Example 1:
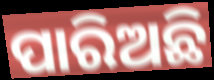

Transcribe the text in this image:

ପାରିଅଛି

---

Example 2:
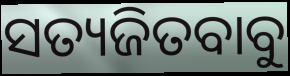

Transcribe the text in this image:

ସତ୍ୟଜିତବାବୁ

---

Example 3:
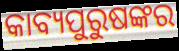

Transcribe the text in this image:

କାବ୍ୟପୁରୁଷଙ୍କର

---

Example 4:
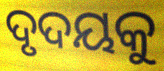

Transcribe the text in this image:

ଦୃଦୟକୁ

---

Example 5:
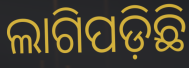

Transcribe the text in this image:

ଲାଗିପଡ଼ିଛି